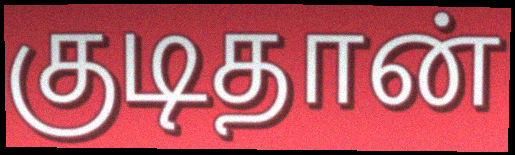
குடிதான்